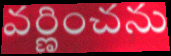
వర్ణించను